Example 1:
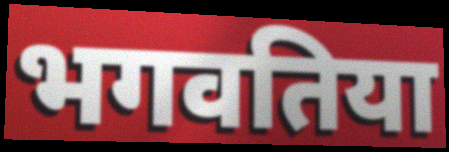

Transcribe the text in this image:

भगवतिया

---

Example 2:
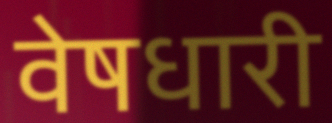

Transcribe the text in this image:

वेषधारी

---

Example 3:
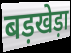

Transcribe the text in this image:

बड़खेड़ा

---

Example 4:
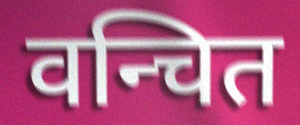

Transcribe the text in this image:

वन्चित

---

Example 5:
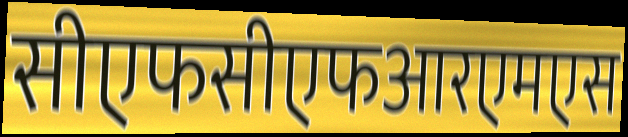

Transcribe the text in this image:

सीएफसीएफआरएमएस